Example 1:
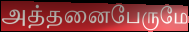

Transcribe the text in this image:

அத்தனைபேருமே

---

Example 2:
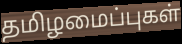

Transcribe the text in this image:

தமிழமைப்புகள்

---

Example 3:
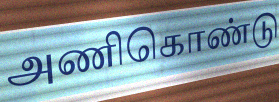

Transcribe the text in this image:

அணிகொண்டு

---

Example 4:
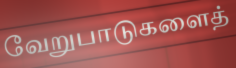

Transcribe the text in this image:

வேறுபாடுகளைத்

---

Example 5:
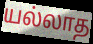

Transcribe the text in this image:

யல்லாத